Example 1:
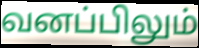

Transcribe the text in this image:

வனப்பிலும்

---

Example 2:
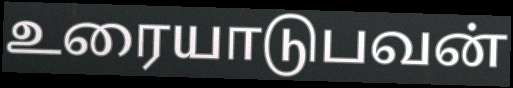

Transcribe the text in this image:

உரையாடுபவன்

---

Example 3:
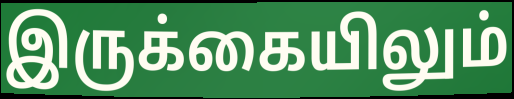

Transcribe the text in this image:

இருக்கையிலும்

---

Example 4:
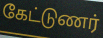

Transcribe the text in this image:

கேட்டுணர்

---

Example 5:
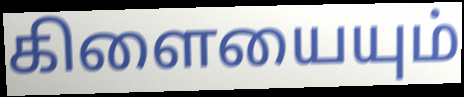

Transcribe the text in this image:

கிளையையும்